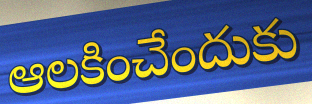
ఆలకించేందుకు